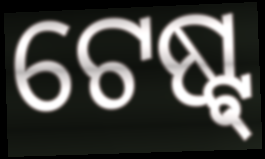
ଟେଷ୍ଟ୍